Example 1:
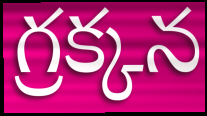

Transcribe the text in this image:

గ్రక్కన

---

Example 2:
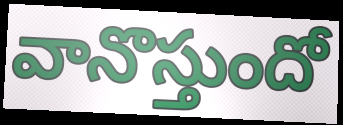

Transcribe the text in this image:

వానొస్తుందో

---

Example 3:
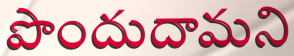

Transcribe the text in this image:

పొందుదామని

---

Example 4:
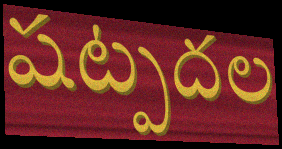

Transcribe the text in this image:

షట్పదల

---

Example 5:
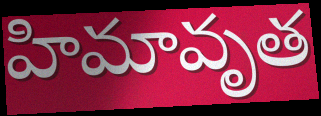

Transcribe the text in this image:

హిమావృత